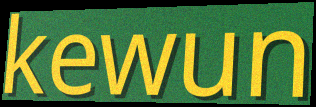
kewun